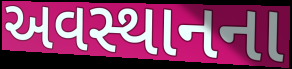
અવસ્થાનના